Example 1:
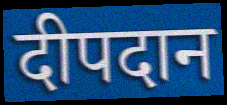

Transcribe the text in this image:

दीपदान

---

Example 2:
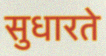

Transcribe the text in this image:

सुधारते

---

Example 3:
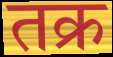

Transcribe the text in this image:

तक्र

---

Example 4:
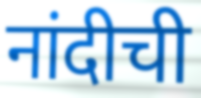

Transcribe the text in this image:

नांदीची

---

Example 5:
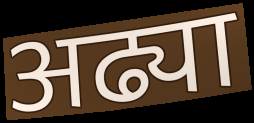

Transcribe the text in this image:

अढ्या